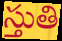
స్తుతి